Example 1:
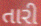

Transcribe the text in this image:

તારી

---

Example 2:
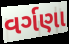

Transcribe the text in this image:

વર્ગણા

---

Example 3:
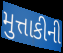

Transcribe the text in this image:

મુત્તાકીની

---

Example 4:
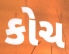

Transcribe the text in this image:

કોચ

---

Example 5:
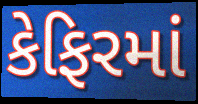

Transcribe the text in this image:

કેફિરમાં